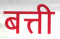
बत्ती